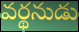
వర్థనుడు